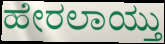
ಹೇರಲಾಯ್ತು